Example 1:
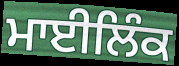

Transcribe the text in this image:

ਮਾਈਲਿੰਕ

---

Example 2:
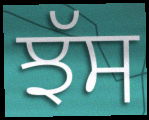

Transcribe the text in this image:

ਝੱਸ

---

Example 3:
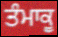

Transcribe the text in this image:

ਤੰਮਾਕੂ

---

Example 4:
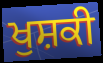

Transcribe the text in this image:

ਖੁਸ਼ਕੀ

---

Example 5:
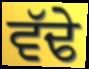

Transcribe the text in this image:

ਵੱਢੇ